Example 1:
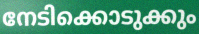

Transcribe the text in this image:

നേടിക്കൊടുക്കും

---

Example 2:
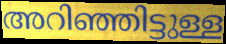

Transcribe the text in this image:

അറിഞ്ഞിട്ടുള്ള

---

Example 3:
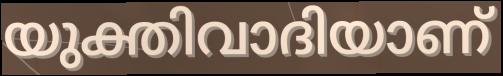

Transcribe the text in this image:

യുക്തിവാദിയാണ്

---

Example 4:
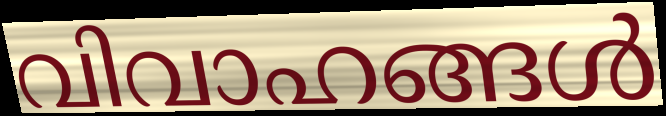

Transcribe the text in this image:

വിവാഹങ്ങൾ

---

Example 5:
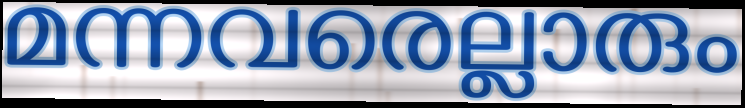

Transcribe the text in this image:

മന്നവരെല്ലാരും